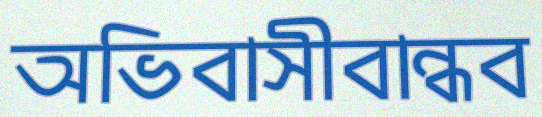
অভিবাসীবান্ধব